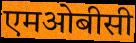
एमओबीसी